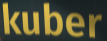
kuber